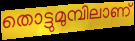
തൊട്ടുമുമ്പിലാണ്